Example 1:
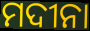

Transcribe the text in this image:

ମଦୀନା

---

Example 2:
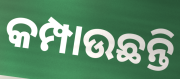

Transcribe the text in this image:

କମ୍ପାଉଛନ୍ତି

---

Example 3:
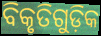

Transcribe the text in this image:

ବିକୃତିଗୁଡ଼ିକ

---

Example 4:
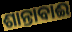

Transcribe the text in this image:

ଶାନ୍ତାବାଈ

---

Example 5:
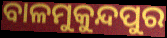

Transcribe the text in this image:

ବାଳମୁକୁନ୍ଦପୁର